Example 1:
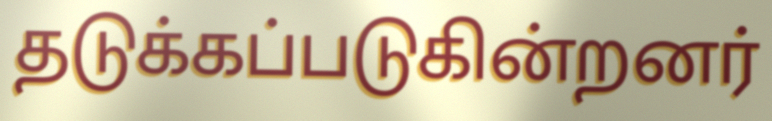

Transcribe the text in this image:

தடுக்கப்படுகின்றனர்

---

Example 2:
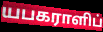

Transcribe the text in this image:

யபகராளிப்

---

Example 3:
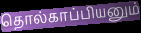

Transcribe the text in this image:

தொல்காப்பியனும்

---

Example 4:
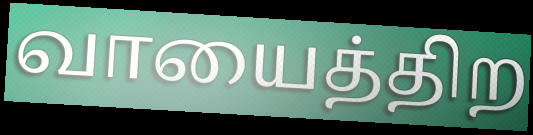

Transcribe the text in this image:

வாயைத்திற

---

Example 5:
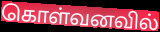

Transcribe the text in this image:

கொள்வனவில்